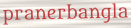
pranerbangla